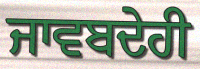
ਜਾਵਬਦੇਹੀ